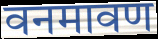
वनमावण